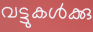
വട്ടുകൾക്കു